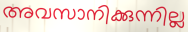
അവസാനിക്കുന്നില്ല